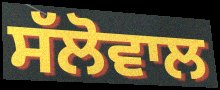
ਸੱਲੋਵਾਲ